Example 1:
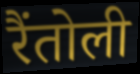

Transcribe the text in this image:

रैंतोली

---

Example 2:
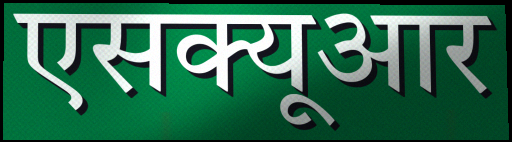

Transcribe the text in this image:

एसक्यूआर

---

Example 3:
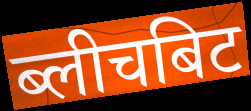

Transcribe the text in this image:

ब्लीचबिट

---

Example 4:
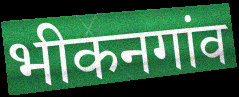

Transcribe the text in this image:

भीकनगांव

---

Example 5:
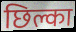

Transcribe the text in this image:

छिल्का